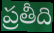
ప్రతీది